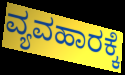
ವ್ಯವಹಾರಕ್ಕೆ